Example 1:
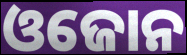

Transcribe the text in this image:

ଓଜୋନ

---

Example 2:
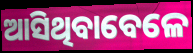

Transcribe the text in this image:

ଆସିଥିବାବେଳେ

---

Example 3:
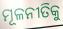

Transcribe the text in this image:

ମୂଳନୀତିକୁ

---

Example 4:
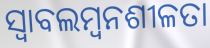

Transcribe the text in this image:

ସ୍ୱାବଲମ୍ୱନଶୀଳତା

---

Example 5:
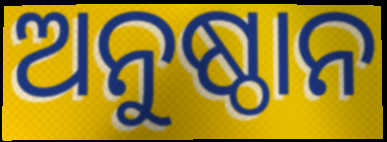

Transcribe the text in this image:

ଅନୁଷ୍ଠାନ